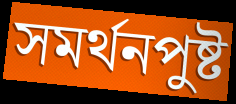
সমর্থনপুষ্ট